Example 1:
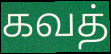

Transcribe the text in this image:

கவத்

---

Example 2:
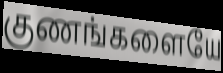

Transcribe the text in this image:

குணங்களையே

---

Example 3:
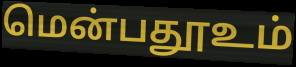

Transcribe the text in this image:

மென்பதூஉம்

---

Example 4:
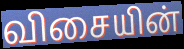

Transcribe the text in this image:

விசையின்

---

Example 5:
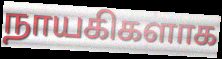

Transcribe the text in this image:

நாயகிகளாக